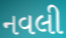
નવલી